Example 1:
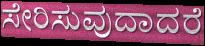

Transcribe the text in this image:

ಸೇರಿಸುವುದಾದರೆ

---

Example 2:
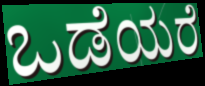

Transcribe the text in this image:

ಒಡೆಯರೆ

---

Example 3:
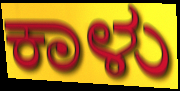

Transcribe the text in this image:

ಕಾಳು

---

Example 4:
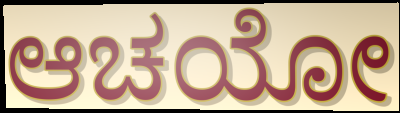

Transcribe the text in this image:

ಆಚಯೋ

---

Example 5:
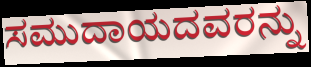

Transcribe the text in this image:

ಸಮುದಾಯದವರನ್ನು